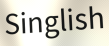
Singlish